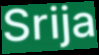
Srija